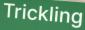
Trickling